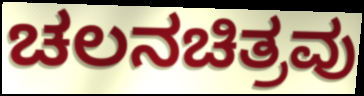
ಚಲನಚಿತ್ರವು